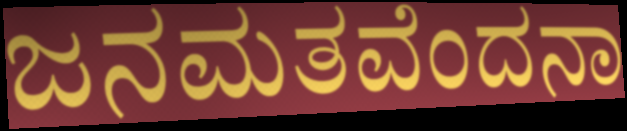
ಜನಮತವೆಂದನಾ